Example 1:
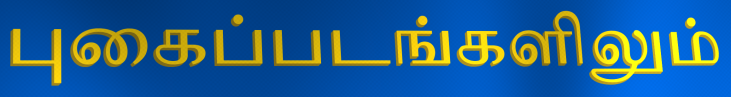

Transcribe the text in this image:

புகைப்படங்களிலும்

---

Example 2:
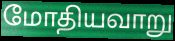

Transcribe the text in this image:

மோதியவாறு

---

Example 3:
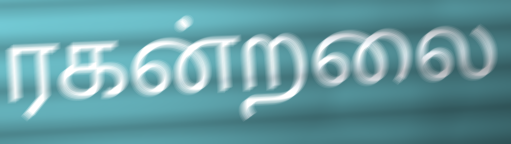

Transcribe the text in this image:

ரகன்றலை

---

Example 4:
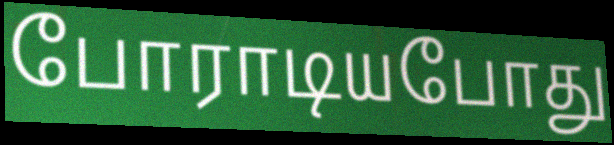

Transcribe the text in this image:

போராடியபோது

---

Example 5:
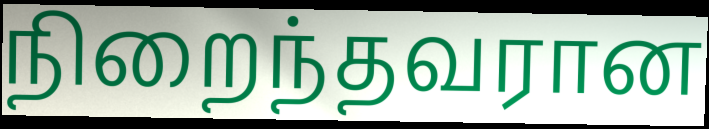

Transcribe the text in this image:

நிறைந்தவரான